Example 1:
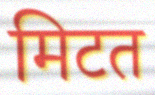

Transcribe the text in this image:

मिटत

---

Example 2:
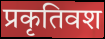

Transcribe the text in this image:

प्रकृतिवश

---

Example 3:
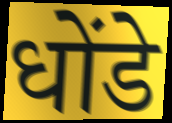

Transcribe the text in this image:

धोंडे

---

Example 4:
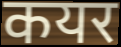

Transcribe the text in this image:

कयर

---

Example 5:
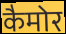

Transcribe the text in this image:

कैमोर